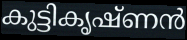
കുട്ടികൃഷ്ണൻ